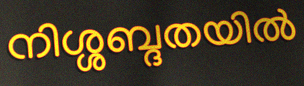
നിശ്ശബ്ദതയിൽ